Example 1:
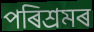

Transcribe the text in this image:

পৰিশ্ৰমৰ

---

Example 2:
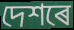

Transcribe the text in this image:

দেশৰে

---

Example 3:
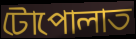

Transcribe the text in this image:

টোপোলাত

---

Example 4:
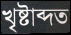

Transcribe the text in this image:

খৃষ্টাব্দত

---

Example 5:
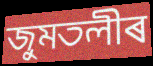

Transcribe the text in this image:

জুমতলীৰ